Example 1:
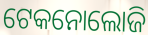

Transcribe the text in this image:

ଟେକନୋଲୋଜି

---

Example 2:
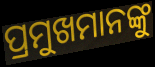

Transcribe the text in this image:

ପ୍ରମୁଖମାନଙ୍କୁ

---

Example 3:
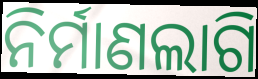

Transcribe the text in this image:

ନିର୍ମାଣଲାଗି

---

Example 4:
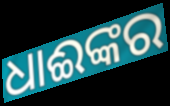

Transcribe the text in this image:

ଧାଈଙ୍କର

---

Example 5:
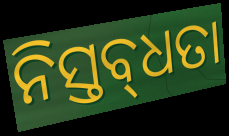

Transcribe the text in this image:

ନିସ୍ତବ୍‌ଧତା